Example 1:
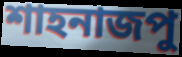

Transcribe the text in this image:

শাহনাজপু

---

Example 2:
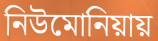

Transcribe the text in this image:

নিউমোনিয়ায়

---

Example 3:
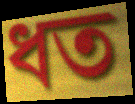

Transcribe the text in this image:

ধত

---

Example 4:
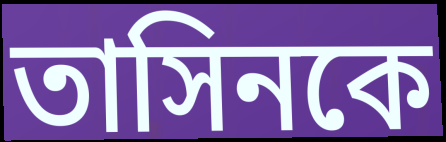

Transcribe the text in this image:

তাসিনকে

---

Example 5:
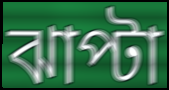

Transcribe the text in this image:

ঝাপ্টা